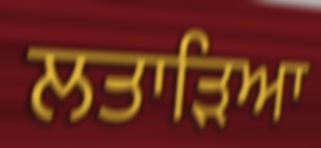
ਲਤਾੜਿਆ